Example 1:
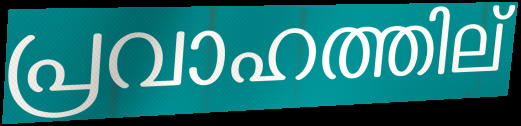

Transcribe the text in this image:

പ്രവാഹത്തില്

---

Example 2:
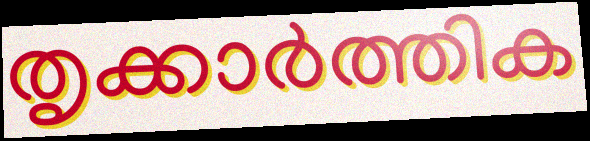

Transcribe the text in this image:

തൃക്കാർത്തിക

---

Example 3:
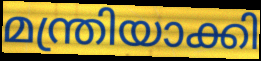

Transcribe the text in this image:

മന്ത്രിയാക്കി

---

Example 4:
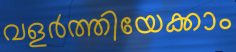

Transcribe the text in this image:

വളർത്തിയേക്കാം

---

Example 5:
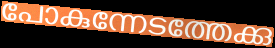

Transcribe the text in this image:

പോകുന്നേടത്തേക്കു